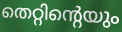
തെറ്റിന്റെയും